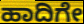
ಹಾದಿಗೇ